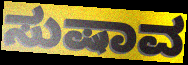
ಸುಷಾವ